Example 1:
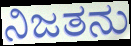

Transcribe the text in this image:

ನಿಜತನು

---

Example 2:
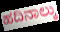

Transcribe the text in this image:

ಹದಿನಾಲ್ಕು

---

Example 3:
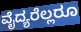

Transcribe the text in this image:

ವೈದ್ಯರೆಲ್ಲರೂ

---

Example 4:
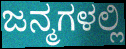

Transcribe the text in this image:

ಜನ್ಮಗಳಲ್ಲಿ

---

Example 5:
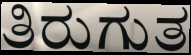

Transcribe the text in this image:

ತಿರುಗುತ